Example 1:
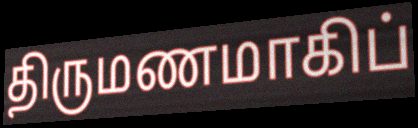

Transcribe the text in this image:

திருமணமாகிப்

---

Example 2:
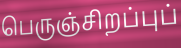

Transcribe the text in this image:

பெருஞ்சிறப்புப்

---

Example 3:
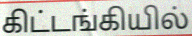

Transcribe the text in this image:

கிட்டங்கியில்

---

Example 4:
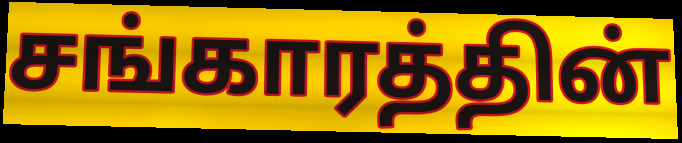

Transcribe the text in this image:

சங்காரத்தின்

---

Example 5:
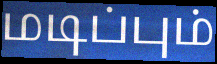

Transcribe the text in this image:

மடிப்பும்